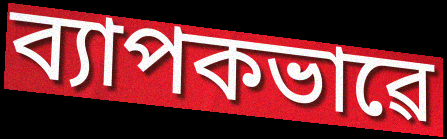
ব্যাপকভাৱে